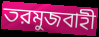
তরমুজবাহী